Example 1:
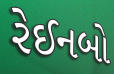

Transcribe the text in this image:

રેઈનબો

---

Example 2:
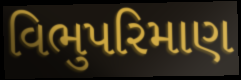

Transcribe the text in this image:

વિભુપરિમાણ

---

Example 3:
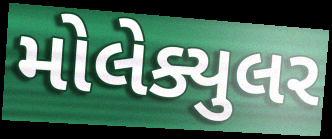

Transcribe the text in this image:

મોલેક્યુલર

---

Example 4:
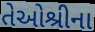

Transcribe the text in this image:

તેઓશ્રીના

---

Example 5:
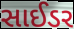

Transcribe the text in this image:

સાઈડર